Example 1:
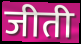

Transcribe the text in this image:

जीती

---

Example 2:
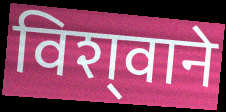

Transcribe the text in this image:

विश्वाने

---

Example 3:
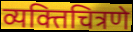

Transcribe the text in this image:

व्यक्तिचित्रणे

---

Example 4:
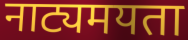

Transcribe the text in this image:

नाट्यमयता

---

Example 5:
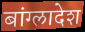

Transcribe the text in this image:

बांग्लादेश